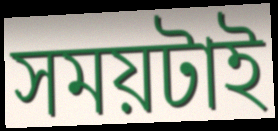
সময়টাই